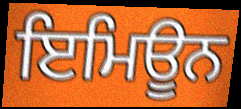
ਇਮਿਊਨ